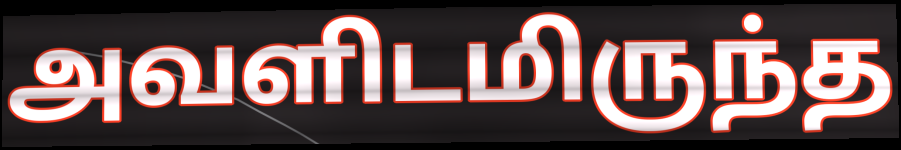
அவளிடமிருந்த